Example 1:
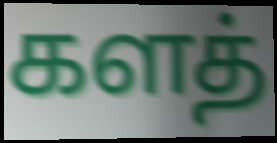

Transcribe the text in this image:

களத்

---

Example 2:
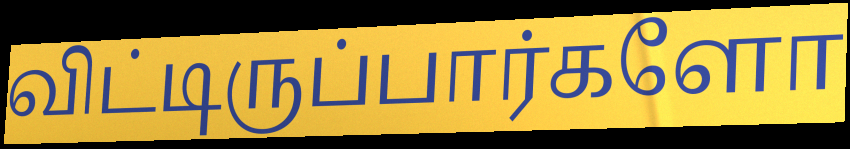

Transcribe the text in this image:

விட்டிருப்பார்களோ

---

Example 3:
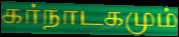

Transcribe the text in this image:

கர்நாடகமும்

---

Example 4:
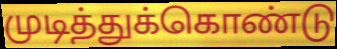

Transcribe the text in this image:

முடித்துக்கொண்டு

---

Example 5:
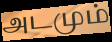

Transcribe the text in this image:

அடமும்